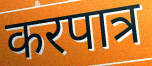
करपात्र